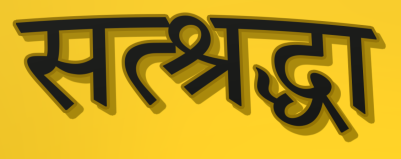
सत्श्रद्धा